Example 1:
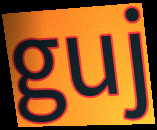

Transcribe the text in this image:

guj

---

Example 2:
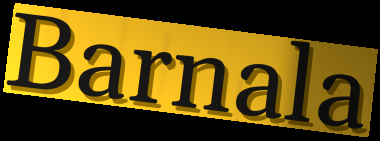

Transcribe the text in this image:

Barnala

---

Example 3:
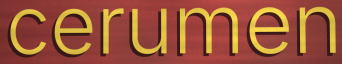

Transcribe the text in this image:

cerumen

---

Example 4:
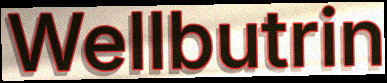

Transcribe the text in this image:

Wellbutrin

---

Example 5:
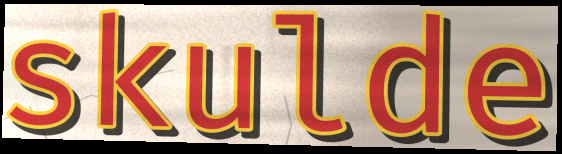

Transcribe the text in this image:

skulde